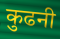
कुढनी